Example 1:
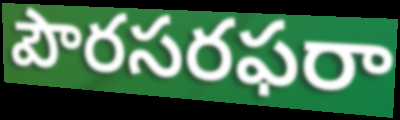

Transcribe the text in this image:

పౌరసరఫరా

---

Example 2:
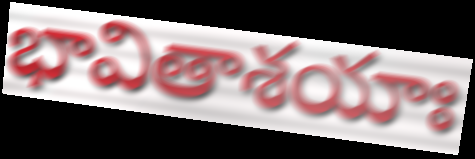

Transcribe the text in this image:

భావితాశయాః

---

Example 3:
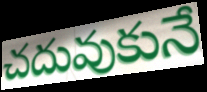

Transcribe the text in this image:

చదువుకునే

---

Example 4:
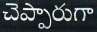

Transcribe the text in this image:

చెప్పారుగా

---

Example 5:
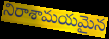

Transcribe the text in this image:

నిరాశామయమైన